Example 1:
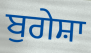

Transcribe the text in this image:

ਬੁਗੇਸ਼ਾ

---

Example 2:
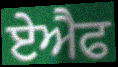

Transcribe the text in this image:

ਏਐਫ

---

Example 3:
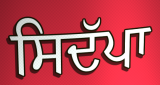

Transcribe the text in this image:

ਸਿਦੱਪਾ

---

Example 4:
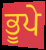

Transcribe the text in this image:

ਭੂਪੇ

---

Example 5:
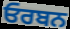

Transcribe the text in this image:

ਓਰਬਨ